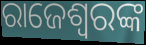
ରାଜେଶ୍ୱରଙ୍କ